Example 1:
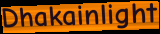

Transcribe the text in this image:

Dhakainlight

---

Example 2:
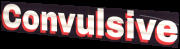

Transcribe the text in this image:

Convulsive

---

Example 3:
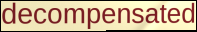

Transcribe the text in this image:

decompensated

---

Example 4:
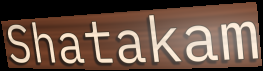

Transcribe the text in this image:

Shatakam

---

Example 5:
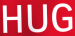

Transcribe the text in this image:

HUG